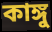
কাঙ্গু